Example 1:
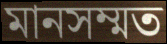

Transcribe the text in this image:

মানসম্মত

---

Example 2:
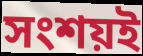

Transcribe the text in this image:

সংশয়ই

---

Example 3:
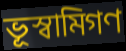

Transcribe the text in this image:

ভূস্বামিগণ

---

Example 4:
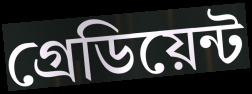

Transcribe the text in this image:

গ্রেডিয়েন্ট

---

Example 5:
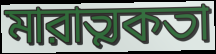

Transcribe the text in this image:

মারাত্মকতা